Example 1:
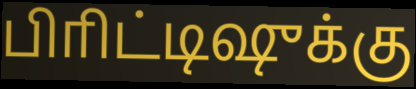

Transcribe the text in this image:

பிரிட்டிஷுக்கு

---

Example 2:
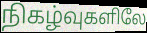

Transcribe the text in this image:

நிகழ்வுகளிலே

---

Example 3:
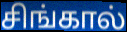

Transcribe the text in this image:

சிங்கால்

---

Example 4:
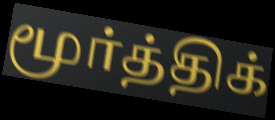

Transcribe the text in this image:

மூர்த்திக்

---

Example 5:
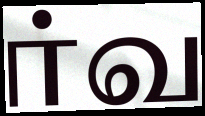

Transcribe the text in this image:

ர்வ